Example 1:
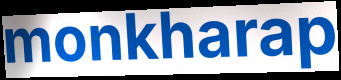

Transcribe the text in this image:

monkharap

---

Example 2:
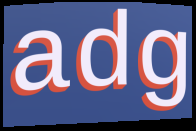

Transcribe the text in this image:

adg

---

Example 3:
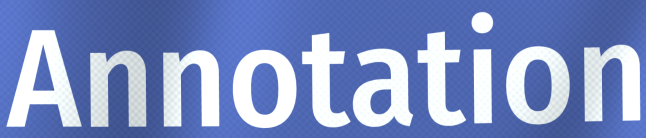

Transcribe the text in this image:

Annotation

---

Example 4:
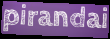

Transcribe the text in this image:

pirandai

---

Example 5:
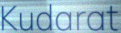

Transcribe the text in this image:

Kudarat